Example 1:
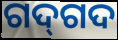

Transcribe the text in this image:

ଗଦ୍‌ଗଦ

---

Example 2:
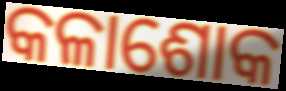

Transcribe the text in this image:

କଳାଶୋକ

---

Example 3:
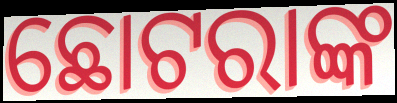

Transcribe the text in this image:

ଛୋଟରାଙ୍କ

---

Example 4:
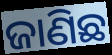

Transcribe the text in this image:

ଜାଣିଛ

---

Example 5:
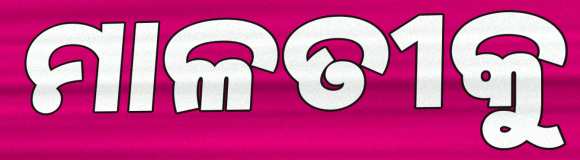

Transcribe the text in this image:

ମାଳତୀକୁ